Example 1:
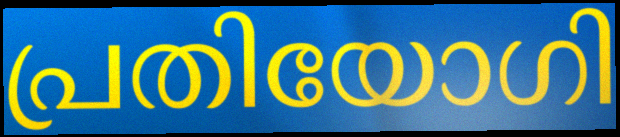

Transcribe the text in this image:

പ്രതിയോഗി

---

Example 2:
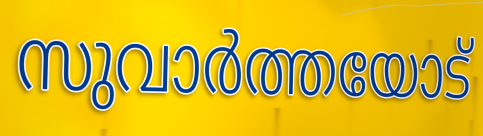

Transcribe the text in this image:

സുവാർത്തയോട്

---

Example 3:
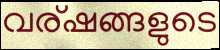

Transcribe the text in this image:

വര്ഷങ്ങളുടെ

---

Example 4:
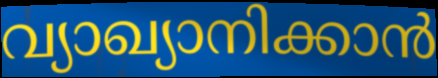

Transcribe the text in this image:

വ്യാഖ്യാനിക്കാൻ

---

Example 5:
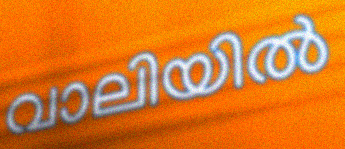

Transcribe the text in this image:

വാലിയിൽ